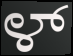
ಳ್